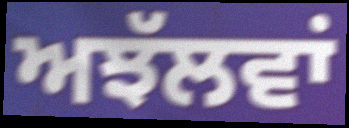
ਅਝੱਲਵਾਂ